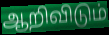
ஆறிவிடும்